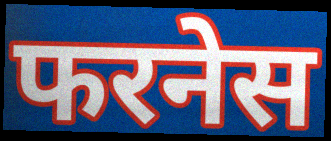
फरनेस